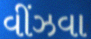
વીંઝવા